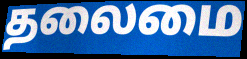
தலைமை